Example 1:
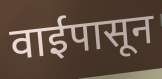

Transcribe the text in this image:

वाईपासून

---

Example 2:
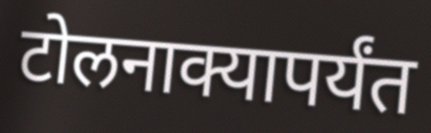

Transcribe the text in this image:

टोलनाक्यापर्यंत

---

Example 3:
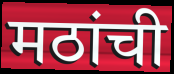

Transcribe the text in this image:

मठांची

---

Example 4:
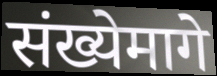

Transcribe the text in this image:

संख्येमागे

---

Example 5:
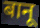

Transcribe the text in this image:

बानू